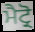
ਮੈਟ੍ਰੋ